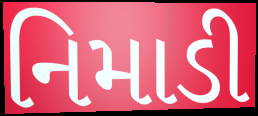
નિમાડી